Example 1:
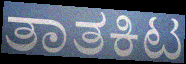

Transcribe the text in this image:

ತಾತಕಿಟ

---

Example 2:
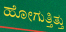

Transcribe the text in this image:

ಹೋಗುತ್ತಿತ್ತು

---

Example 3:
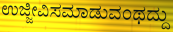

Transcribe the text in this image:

ಉಜ್ಜೀವಿಸಮಾಡುವಂಥದ್ದು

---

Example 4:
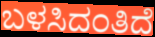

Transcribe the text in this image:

ಬಳಸಿದಂತಿದೆ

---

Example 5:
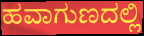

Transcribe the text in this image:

ಹವಾಗುಣದಲ್ಲಿ